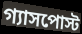
গ্যাসপোস্ট